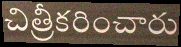
చిత్రీకరించారు